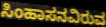
ಸಿಂಹಾಸನವಿರುವ